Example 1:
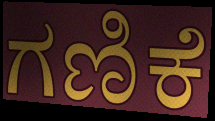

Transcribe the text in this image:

ಗಣಿಕೆ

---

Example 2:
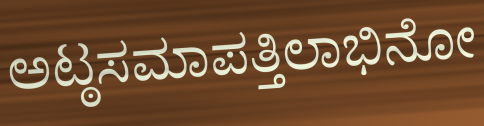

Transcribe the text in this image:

ಅಟ್ಠಸಮಾಪತ್ತಿಲಾಭಿನೋ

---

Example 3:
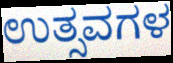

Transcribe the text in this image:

ಉತ್ಸವಗಳ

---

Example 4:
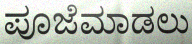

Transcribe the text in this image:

ಪೂಜೆಮಾಡಲು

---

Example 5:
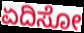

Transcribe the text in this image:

ಏದಿಸೋ